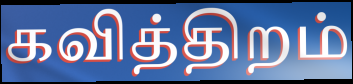
கவித்திறம்